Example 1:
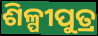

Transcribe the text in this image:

ଶିଳ୍ପୀପୁତ୍ର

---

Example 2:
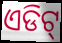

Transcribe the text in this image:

ଏଡିଟ୍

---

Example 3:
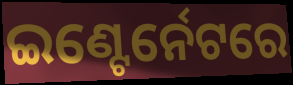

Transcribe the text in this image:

ଇଣ୍ଟେର୍ନେଟରେ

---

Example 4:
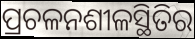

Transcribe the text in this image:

ପ୍ରଚଳନଶୀଳସ୍ଥିତିର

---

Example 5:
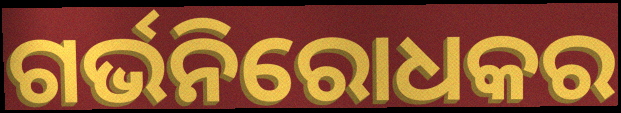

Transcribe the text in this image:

ଗର୍ଭନିରୋଧକର